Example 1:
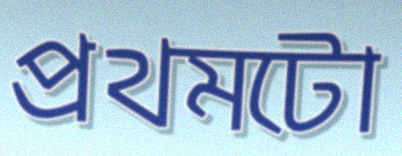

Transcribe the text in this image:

প্ৰথমটো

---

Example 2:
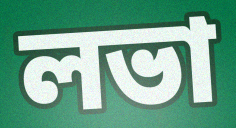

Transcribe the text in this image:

লভা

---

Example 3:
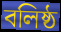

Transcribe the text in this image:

বলিষ্ঠ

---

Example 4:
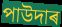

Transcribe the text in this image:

পাউদাৰ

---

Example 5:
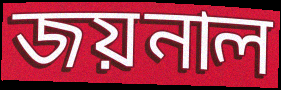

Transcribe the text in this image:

জয়নাল